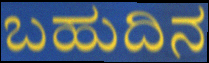
ಬಹುದಿನ